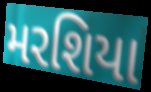
મરશિયા